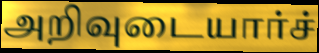
அறிவுடையார்ச்